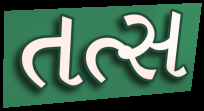
તત્સ